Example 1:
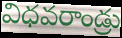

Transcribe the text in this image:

విధవరాండ్రు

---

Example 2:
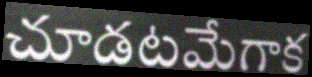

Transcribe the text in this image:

చూడటమేగాక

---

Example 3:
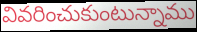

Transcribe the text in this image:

వివరించుకుంటున్నాము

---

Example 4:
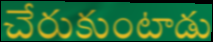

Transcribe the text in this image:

చేరుకుంటాడు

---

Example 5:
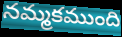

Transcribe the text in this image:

నమ్మకముంది